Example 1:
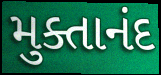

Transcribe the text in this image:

મુક્તાનંદ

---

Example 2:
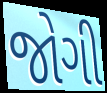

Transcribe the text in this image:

જોગી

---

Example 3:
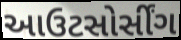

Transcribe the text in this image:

આઉટસોર્સીંગ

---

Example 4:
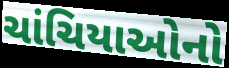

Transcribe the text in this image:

ચાંચિયાઓનો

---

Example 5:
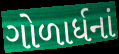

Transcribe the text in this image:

ગોળાર્ધનાં